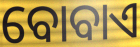
ବୋବାଏ